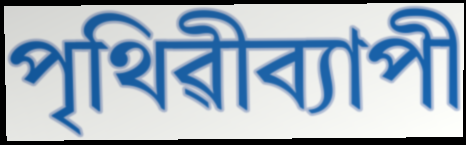
পৃথিৱীব্যাপী